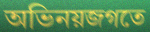
অভিনয়জগতে